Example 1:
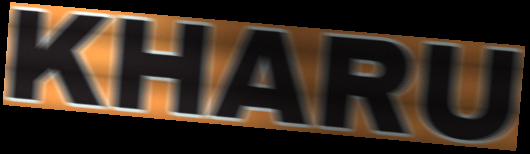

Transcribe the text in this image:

KHARU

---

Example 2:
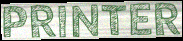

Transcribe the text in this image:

PRINTER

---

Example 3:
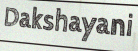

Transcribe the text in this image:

Dakshayani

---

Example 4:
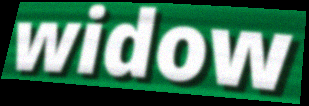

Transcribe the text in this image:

widow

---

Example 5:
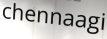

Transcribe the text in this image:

chennaagi